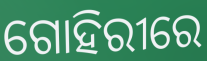
ଗୋହିରୀରେ